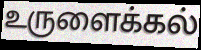
உருளைக்கல்